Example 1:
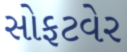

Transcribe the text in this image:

સોફટવેર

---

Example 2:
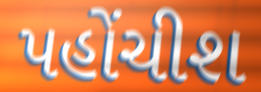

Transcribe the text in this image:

પહોંચીશ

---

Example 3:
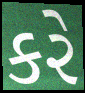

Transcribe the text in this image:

કરે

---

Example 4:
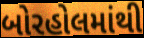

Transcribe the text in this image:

બોરહોલમાંથી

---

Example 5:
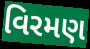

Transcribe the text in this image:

વિરમણ